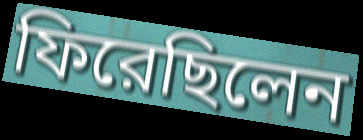
ফিরেছিলেন